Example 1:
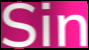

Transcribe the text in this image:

Sin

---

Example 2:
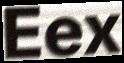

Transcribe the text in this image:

Eex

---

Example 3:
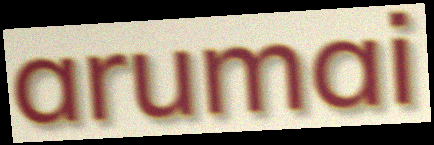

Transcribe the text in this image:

arumai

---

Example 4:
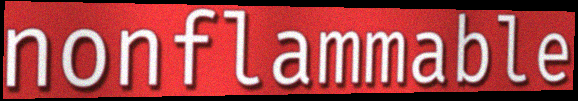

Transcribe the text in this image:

nonflammable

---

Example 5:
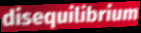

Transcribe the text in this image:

disequilibrium